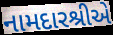
નામદારશ્રીએ